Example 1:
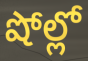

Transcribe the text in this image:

షోల్లో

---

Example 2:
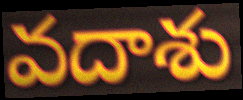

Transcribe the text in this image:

వదాశు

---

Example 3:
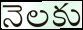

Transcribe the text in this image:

నెలకు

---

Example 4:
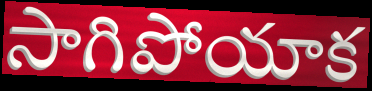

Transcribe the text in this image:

సాగిపోయాక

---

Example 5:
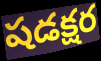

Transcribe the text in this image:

షడక్షర